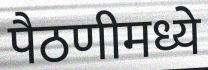
पैठणीमध्ये